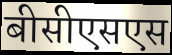
बीसीएसएस